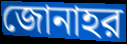
জোনাহর